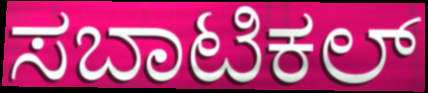
ಸಬಾಟಿಕಲ್